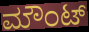
ಮೌಂಟ್